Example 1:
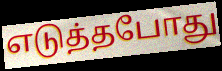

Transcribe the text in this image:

எடுத்தபோது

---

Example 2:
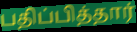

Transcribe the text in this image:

பதிப்பித்தார்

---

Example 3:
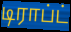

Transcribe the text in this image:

டிராப்ட்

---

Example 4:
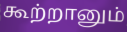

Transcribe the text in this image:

கூற்றானும்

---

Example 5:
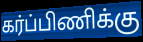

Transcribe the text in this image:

கர்ப்பிணிக்கு